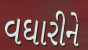
વઘારીને